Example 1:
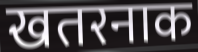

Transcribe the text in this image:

खतरनाक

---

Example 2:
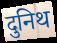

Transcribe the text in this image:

दुनिथ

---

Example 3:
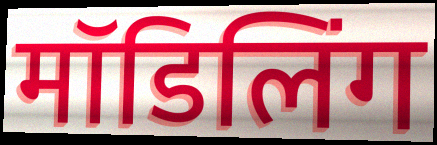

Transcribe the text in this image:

मॉडिलिंग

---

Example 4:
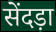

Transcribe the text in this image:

सेंदड़ा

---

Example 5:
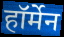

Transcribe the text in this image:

हॉर्मेन